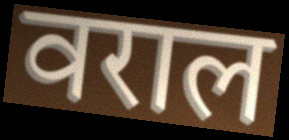
वराल